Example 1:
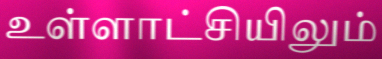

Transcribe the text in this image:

உள்ளாட்சியிலும்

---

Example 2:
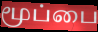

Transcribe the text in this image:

மூப்பை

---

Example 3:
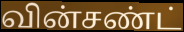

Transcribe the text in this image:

வின்சண்ட்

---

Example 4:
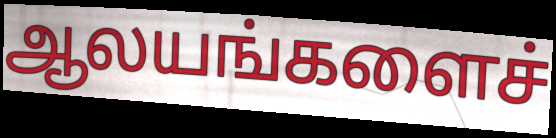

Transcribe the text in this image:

ஆலயங்களைச்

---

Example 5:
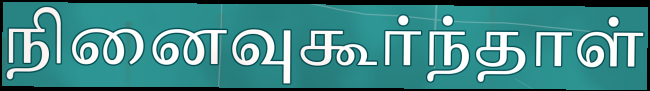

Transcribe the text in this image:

நினைவுகூர்ந்தாள்